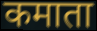
कमाता